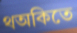
থঅকিতে